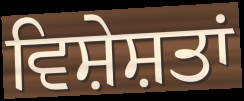
ਵਿਸ਼ੇਸ਼ਤਾਂ